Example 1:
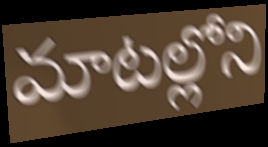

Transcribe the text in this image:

మాటల్లోని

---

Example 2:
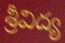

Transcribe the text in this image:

శ్రీవిద్య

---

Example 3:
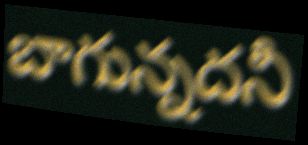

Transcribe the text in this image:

బాగున్నదనీ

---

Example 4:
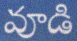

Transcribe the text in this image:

వూడి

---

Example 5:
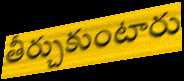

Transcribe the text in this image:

తీర్చుకుంటారు